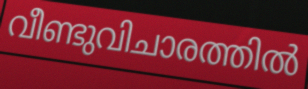
വീണ്ടുവിചാരത്തിൽ